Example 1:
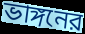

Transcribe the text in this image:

ভাঙ্গনের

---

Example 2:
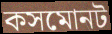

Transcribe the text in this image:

কসমোনট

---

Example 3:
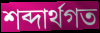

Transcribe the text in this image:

শব্দার্থগত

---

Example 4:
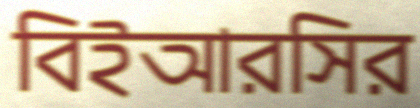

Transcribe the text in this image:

বিইআরসির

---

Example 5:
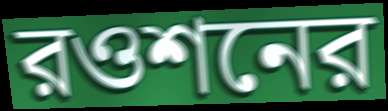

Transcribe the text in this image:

রওশনের